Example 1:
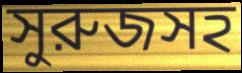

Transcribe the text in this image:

সুরুজসহ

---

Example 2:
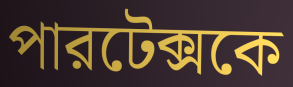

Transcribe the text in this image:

পারটেক্সকে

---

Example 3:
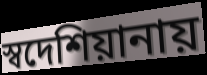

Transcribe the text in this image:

স্বদেশিয়ানায়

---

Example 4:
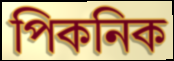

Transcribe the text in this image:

পিকনিক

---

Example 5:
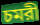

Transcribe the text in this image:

চমরী